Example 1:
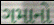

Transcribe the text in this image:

ગમાનો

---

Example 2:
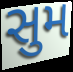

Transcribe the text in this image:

સુમ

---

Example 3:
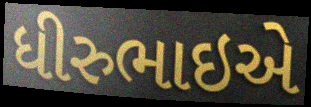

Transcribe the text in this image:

ધીરુભાઇએ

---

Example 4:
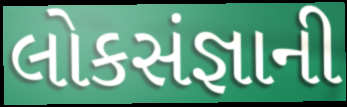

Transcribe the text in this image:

લોકસંજ્ઞાની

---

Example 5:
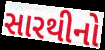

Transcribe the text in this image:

સારથીનો